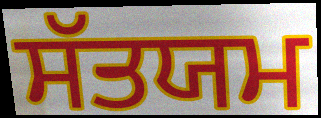
ਸੱਤਯਮ